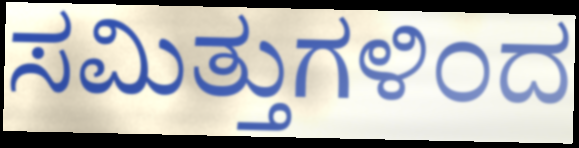
ಸಮಿತ್ತುಗಳಿಂದ